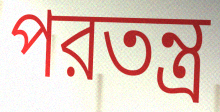
পরতন্ত্র